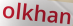
olkhan